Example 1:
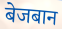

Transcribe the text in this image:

बेजबान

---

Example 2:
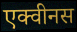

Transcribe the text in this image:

एक्वीनस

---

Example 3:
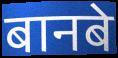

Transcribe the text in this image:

बानबे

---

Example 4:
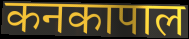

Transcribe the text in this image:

कनकापाल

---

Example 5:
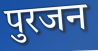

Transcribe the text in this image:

पुरजन